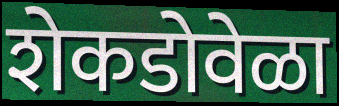
शेकडोवेळा